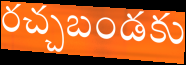
రచ్చబండకు